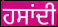
ਹਸਾਂਦੀ